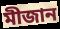
মীজান